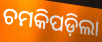
ଚମକିପଡ଼ିଲା